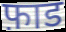
फ़ाड